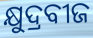
କ୍ଷୁଦ୍ରବୀଜ